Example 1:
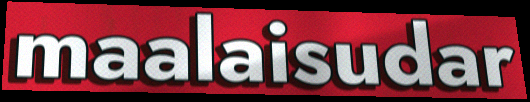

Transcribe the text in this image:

maalaisudar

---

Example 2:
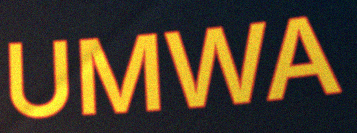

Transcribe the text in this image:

UMWA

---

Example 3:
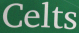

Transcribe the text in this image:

Celts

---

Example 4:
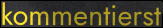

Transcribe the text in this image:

kommentierst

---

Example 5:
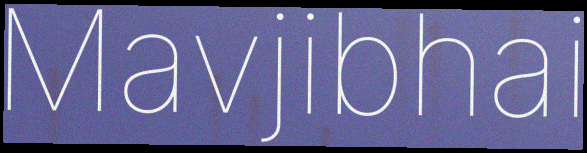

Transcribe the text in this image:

Mavjibhai